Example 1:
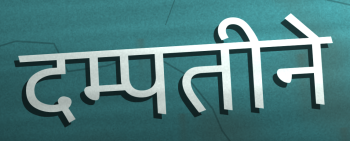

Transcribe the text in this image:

दम्पतीने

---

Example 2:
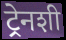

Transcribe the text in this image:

ट्रेनशी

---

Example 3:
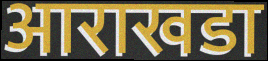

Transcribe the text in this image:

आराखडा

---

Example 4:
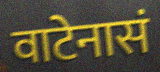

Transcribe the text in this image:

वाटेनासं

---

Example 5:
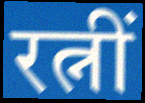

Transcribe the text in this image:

रत्नीं